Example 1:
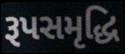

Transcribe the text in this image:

રૂપસમૃદ્ધિ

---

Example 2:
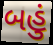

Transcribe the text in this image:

બહું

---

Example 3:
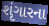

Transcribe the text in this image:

શૃંગારના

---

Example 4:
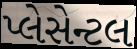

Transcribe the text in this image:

પ્લેસેન્ટલ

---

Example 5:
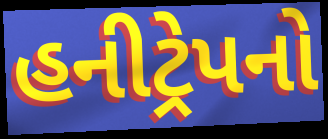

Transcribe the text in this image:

હનીટ્રેપનો